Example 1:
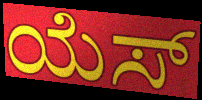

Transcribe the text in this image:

ಯೆಸ್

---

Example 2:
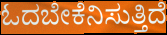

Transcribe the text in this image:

ಓದಬೇಕೆನಿಸುತ್ತಿದೆ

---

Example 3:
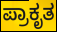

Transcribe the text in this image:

ಪ್ರಾಕೃತ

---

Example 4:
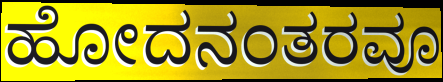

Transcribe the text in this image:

ಹೋದನಂತರವೂ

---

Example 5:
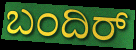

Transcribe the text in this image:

ಬಂದಿರ್